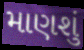
માણશું